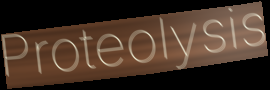
Proteolysis